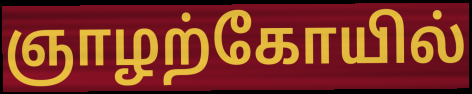
ஞாழற்கோயில்